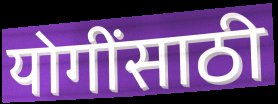
योगींसाठी